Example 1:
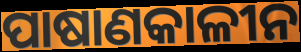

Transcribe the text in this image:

ପାଷାଣକାଳୀନ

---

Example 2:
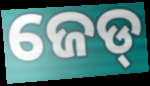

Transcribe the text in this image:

ଜେଡ୍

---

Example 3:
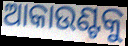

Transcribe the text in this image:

ଆକାଉଣ୍ଟକୁ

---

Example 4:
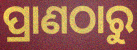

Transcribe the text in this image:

ପ୍ରାଣଠାରୁ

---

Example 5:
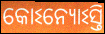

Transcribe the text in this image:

କୋଽନ୍ୟୋଽସ୍ତି